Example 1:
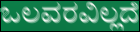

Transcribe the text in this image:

ಒಲವರವಿಲ್ಲದೆ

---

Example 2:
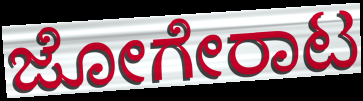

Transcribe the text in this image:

ಜೋಗೇರಾಟ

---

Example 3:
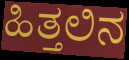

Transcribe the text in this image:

ಹಿತ್ತಲಿನ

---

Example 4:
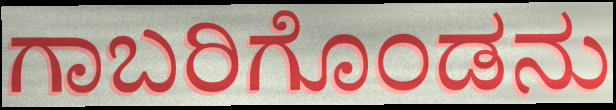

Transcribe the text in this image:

ಗಾಬರಿಗೊಂಡನು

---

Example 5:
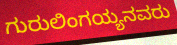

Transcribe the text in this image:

ಗುರುಲಿಂಗಯ್ಯನವರು